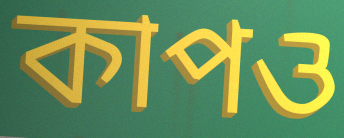
কাপও